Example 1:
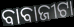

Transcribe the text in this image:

ବାବାଜୀଟା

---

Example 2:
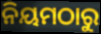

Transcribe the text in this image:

ନିୟମଠାରୁ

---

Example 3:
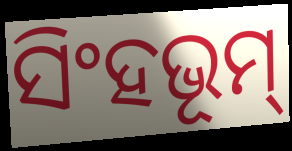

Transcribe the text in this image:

ସିଂହଭୂମ୍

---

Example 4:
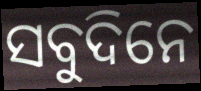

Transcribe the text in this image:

ସବୁଦିନେ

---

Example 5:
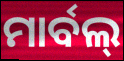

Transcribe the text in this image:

ମାର୍ବଲ୍